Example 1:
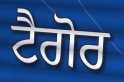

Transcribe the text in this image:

ਟੈਗੋਰ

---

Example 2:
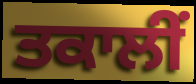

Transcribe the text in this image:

ਤਕਾਲੀਂ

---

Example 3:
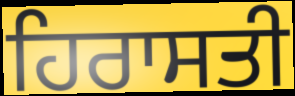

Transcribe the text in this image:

ਹਿਰਾਸਤੀ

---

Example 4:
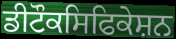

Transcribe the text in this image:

ਡੀਟੌਕਸਿਫਿਕੇਸ਼ਨ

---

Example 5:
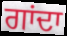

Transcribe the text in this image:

ਗਾਂਦਾ